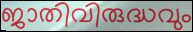
ജാതിവിരുദ്ധവും